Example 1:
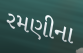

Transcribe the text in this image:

રમણીના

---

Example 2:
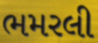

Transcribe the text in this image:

ભમરલી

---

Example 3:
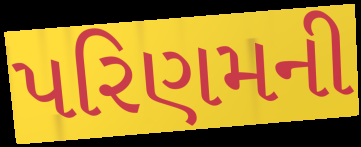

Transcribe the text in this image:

પરિણમની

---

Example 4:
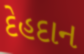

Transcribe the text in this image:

દેહદાન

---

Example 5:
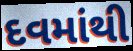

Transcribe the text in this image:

દવમાંથી